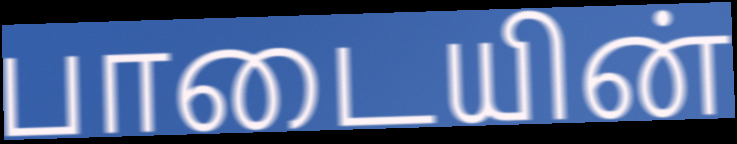
பாடையின்